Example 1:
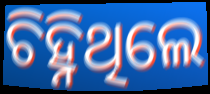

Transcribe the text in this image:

ଚିହ୍ନିଥିଲେ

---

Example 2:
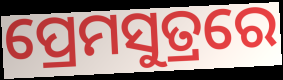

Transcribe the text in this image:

ପ୍ରେମସୁତ୍ରରେ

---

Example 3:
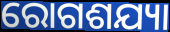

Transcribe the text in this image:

ରୋଗଶଯ୍ୟା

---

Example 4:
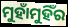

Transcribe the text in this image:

ମୁହାଁମୁହିଁର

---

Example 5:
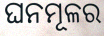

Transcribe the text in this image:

ଘନମୂଳର